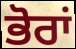
ਭੋਰਾਂ